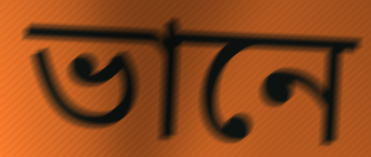
ভানে